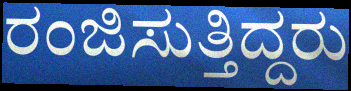
ರಂಜಿಸುತ್ತಿದ್ದರು